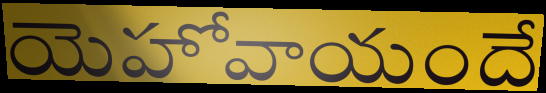
యెహోవాయందే